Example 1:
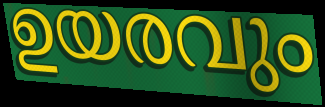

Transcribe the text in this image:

ഉയരവും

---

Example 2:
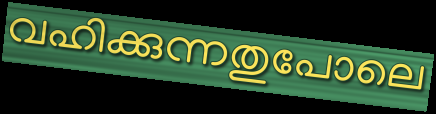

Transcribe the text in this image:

വഹിക്കുന്നതുപോലെ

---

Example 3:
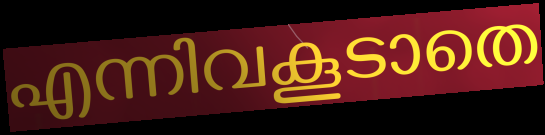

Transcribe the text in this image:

എന്നിവകൂടാതെ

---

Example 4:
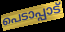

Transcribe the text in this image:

പെടാപ്പാട്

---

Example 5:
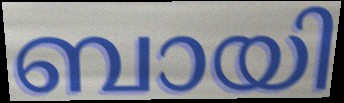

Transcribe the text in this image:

ബായി